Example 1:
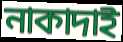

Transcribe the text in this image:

নাকাদাই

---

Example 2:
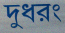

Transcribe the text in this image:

দুধরং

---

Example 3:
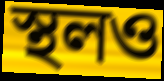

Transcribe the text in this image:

স্থলও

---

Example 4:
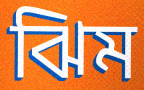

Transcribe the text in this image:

ঝিম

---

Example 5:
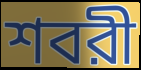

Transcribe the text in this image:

শবরী